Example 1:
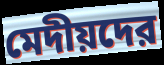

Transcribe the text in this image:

মেদীয়দের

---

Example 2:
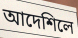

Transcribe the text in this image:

আদেশিলে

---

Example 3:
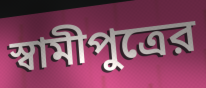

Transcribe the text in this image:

স্বামীপুত্রের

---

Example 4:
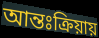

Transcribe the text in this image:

আন্তঃক্রিয়ায়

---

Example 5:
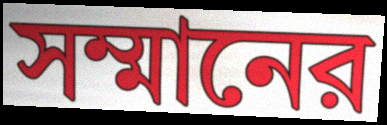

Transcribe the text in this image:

সম্মানের